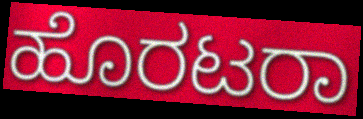
ಹೊರಟರಾ